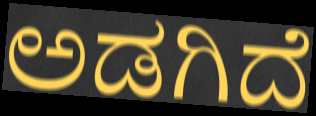
ಅಡಗಿದೆ